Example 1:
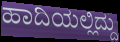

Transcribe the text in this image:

ಹಾದಿಯಲ್ಲಿದ್ದು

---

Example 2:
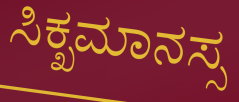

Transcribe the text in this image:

ಸಿಕ್ಖಮಾನಸ್ಸ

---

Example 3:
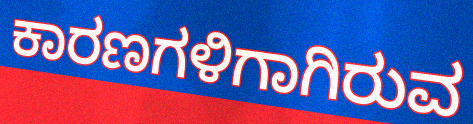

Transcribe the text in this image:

ಕಾರಣಗಳಿಗಾಗಿರುವ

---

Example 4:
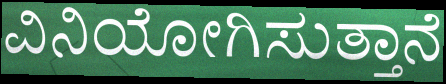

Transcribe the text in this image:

ವಿನಿಯೋಗಿಸುತ್ತಾನೆ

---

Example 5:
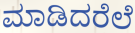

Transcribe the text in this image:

ಮಾಡಿದರೆಲೆ